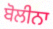
ਬੋਲੀਨਾ